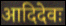
आदिदेवः